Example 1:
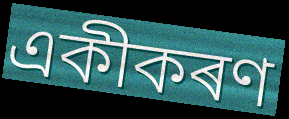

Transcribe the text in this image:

একীকৰণ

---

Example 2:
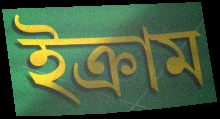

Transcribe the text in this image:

ইক্ৰাম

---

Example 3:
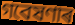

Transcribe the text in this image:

গবেষণাৰ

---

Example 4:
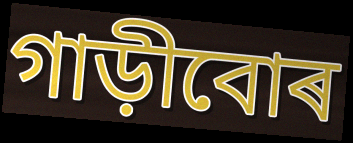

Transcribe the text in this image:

গাড়ীবোৰ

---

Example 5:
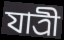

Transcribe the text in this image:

যাত্ৰী